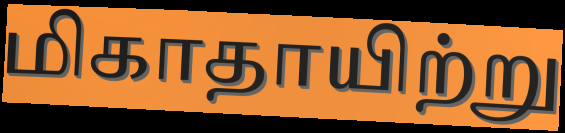
மிகாதாயிற்று